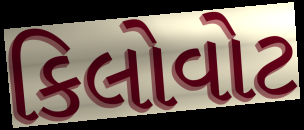
કિલોવોટ